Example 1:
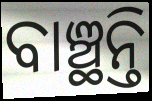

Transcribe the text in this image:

ବାଞ୍ଛନ୍ତି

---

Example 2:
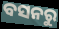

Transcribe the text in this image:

ବସନରୁ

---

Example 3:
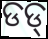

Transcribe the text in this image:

ଡଡ୍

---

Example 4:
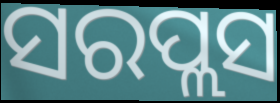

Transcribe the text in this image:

ସରପ୍ଲସ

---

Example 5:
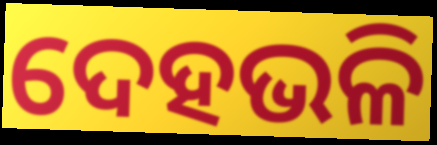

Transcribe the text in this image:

ଦେହଭଳି